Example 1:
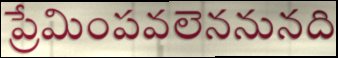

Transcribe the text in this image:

ప్రేమింపవలెననునది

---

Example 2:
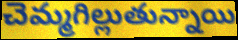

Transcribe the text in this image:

చెమ్మగిల్లుతున్నాయి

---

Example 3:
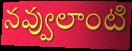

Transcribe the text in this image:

నవ్వులాంటి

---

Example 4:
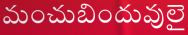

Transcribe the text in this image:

మంచుబిందువులై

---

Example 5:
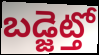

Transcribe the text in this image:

బడ్జెట్తో